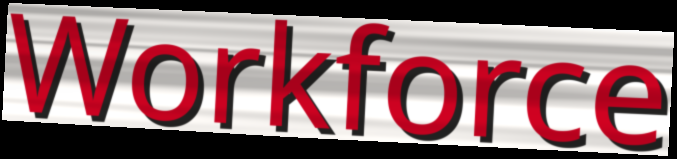
Workforce